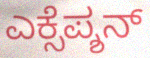
ಎಕ್ಸೆಪ್ಶನ್